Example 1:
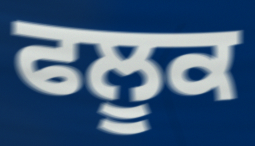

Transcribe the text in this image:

ਫਲੂਕ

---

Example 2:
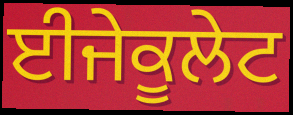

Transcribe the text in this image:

ਈਜੇਕੂਲੇਟ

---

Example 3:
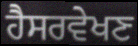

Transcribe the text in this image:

ਹੈਸਰਵੇਖਣ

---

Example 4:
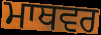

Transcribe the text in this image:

ਮਾਥਵਰ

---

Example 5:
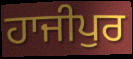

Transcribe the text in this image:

ਹਾਜੀਪੁਰ